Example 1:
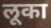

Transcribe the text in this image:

लूका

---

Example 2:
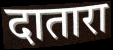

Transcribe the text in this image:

दातारा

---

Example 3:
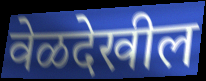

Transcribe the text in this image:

वेळदेखील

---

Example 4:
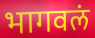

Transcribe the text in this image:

भागवलं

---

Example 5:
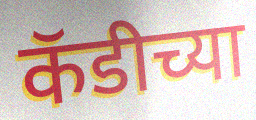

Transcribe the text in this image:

कॅडीच्या